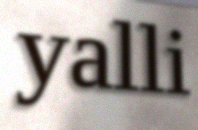
yalli